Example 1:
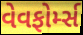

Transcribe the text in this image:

વેવફોર્મ્સ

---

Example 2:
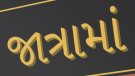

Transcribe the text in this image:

જાત્રામાં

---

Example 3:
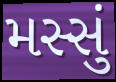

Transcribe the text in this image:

મસ્સું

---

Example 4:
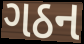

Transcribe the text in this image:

ગઠન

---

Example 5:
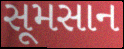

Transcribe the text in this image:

સૂમસાન